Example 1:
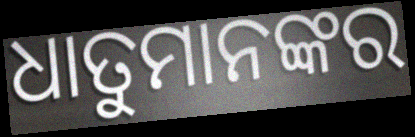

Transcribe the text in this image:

ଧାତୁମାନଙ୍କର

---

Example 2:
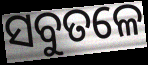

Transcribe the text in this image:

ସବୁତଳେ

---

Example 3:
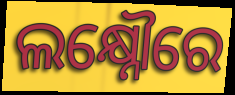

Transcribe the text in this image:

ଲକ୍ଷ୍ନୌରେ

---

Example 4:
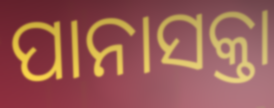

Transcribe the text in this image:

ପାନାସକ୍ତା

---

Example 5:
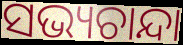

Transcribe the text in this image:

ସଭ୍ୟଚାନ୍ଦା